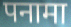
पनामा